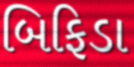
બિફિડા